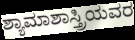
ಶ್ಯಾಮಾಶಾಸ್ತ್ರಿಯವರ